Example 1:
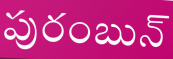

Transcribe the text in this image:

పురంబున్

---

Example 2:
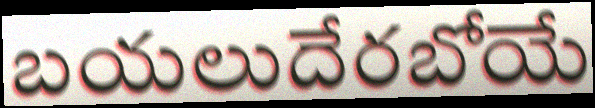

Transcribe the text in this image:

బయలుదేరబోయే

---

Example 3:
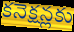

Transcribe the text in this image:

కనెక్షన్లకు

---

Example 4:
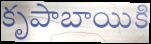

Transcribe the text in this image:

కృపాబాయికి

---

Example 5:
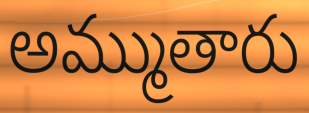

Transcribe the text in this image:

అమ్ముతారు